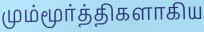
மும்மூர்த்திகளாகிய